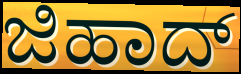
ಜಿಹಾದ್